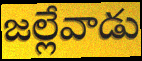
జల్లేవాడు